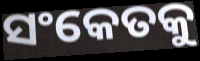
ସଂକେତକୁ